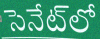
సెనేట్‌లో